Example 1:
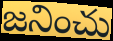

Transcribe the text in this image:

జనించు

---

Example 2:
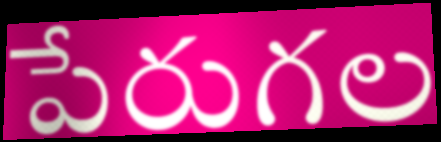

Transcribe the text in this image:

పేరుగల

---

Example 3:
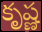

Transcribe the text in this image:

కృష్ణ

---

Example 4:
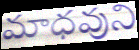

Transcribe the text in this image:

మాధవుని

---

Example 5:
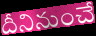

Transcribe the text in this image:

దీనినుంచే